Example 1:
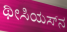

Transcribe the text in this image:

ಥೀಸಿಯಸ್‌ನ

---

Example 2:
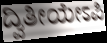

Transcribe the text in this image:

ದ್ವಿತೀಯೇಽಪಿ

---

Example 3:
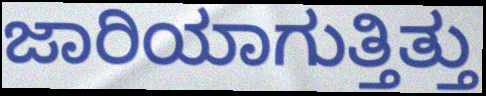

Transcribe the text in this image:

ಜಾರಿಯಾಗುತ್ತಿತ್ತು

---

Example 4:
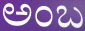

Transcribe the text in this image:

ಅಂಬ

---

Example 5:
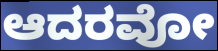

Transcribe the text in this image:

ಆದರವೋ